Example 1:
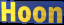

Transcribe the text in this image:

Hoon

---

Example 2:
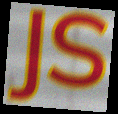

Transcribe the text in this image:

JS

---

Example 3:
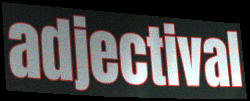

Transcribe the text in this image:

adjectival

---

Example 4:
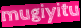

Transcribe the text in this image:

mugiyitu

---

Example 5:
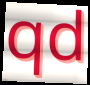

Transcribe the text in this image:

qd